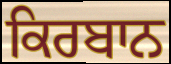
ਕਿਰਬਾਨ